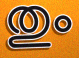
തും